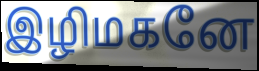
இழிமகனே